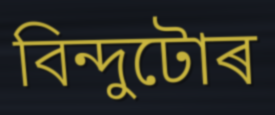
বিন্দুটোৰ